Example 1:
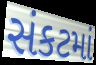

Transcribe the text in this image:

સંકટમાં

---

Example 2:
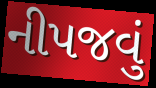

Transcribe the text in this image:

નીપજવું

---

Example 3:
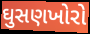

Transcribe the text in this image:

ઘુસણખોરો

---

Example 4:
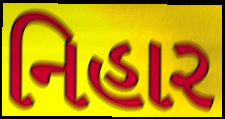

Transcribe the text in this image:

નિહાર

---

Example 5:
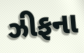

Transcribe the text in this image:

ઝીફના